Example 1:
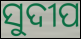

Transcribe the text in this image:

ସୁଦୀପ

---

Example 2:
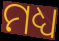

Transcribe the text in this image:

ମଧ୍ୟ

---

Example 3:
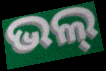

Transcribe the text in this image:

ଭଲ୍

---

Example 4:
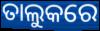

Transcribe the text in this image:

ତାଲୁକରେ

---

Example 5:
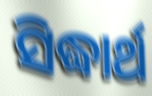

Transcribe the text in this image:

ସିଦ୍ଧାର୍ଥ